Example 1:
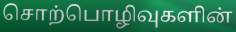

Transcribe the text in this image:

சொற்பொழிவுகளின்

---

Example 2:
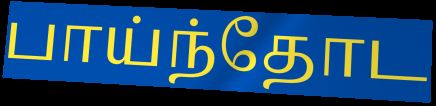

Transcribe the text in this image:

பாய்ந்தோட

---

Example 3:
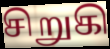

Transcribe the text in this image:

சிறுகி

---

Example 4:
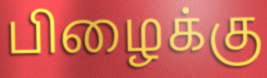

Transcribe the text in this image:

பிழைக்கு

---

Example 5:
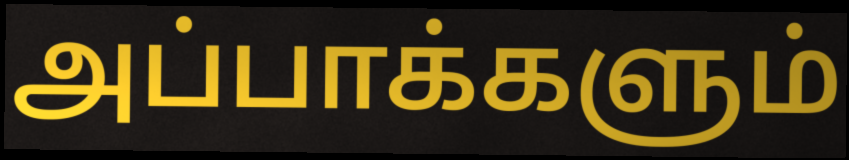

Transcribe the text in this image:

அப்பாக்களும்